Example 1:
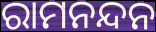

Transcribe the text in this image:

ରାମନନ୍ଦନ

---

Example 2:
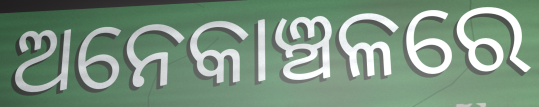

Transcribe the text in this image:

ଅନେକାଞ୍ଚଳରେ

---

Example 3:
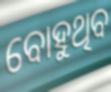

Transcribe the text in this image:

ବୋହୁଥିବ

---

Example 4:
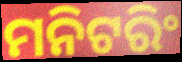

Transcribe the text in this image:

ମନିଟରିଂ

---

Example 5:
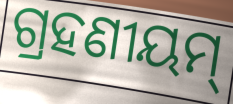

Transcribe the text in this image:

ଗ୍ରହଣୀୟମ୍